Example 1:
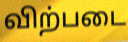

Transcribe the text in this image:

விற்படை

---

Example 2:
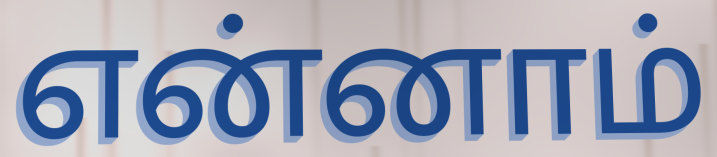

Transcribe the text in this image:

என்னாம்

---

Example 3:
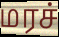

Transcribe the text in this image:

மரச்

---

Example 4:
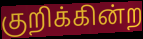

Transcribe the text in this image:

குறிக்கின்ற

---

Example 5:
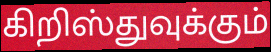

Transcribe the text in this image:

கிறிஸ்துவுக்கும்